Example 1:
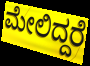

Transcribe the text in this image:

ಮೇಲಿದ್ದರೆ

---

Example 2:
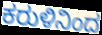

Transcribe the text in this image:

ಕರುಳಿನಿಂದ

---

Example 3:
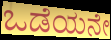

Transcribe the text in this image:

ಒಡೆಯನೇ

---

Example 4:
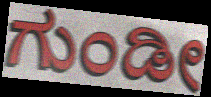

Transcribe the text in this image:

ಗುಂಡೀ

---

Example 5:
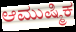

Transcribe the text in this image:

ಆಮುಷ್ಮಿಕ